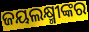
ଜୟଲକ୍ଷ୍ମୀଙ୍କର